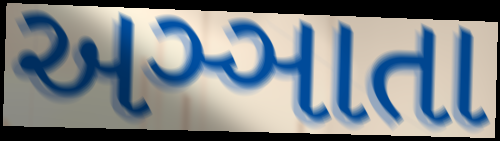
અઞ્ઞાતા